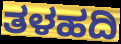
ತಳಹದಿ